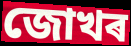
জোখৰ